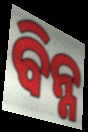
ବିନ୍ନ